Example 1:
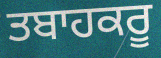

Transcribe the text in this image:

ਤਬਾਹਕਰੂ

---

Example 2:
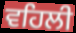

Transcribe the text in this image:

ਵਹਿਲੀ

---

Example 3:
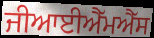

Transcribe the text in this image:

ਜੀਆਈਐੱਮਐੱਸ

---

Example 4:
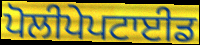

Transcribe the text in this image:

ਪੋਲੀਪੇਪਟਾਈਡ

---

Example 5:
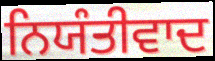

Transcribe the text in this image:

ਨਿਯੰਤੀਵਾਦ